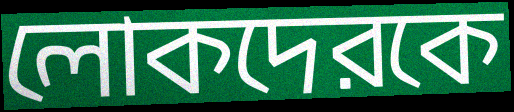
লোকদেরকে